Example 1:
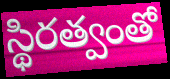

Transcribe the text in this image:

స్థిరత్వంతో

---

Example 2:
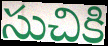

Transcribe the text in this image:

సుచికి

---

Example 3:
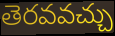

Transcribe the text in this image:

తెరవవచ్చు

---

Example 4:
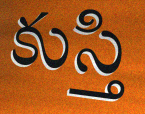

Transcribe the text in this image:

కుస్తి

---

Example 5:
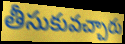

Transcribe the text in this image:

తీసుకువచ్చారు